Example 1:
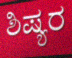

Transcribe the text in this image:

ಶಿಷ್ಯರ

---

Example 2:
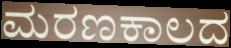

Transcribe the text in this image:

ಮರಣಕಾಲದ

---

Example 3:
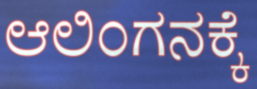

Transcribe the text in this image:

ಆಲಿಂಗನಕ್ಕೆ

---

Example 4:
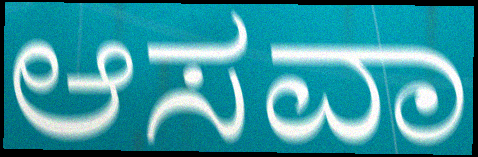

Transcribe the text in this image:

ಆಸವಾ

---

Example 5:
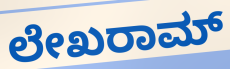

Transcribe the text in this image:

ಲೇಖರಾಮ್